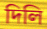
দিলি